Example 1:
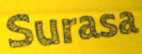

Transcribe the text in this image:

Surasa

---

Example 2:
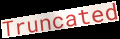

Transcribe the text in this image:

Truncated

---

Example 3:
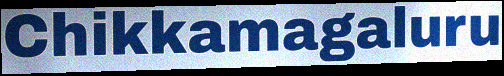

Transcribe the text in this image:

Chikkamagaluru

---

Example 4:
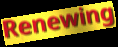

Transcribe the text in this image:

Renewing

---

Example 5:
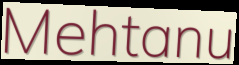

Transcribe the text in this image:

Mehtanu